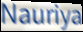
Nauriya